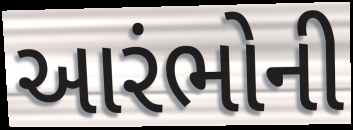
આરંભોની